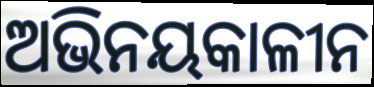
ଅଭିନୟକାଳୀନ